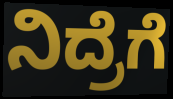
ನಿದ್ರೆಗೆ